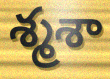
శ్మశా